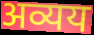
अव्यय